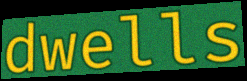
dwells